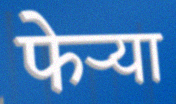
फेर्‍या